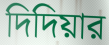
দিদিয়ার